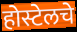
होस्टेलचे